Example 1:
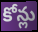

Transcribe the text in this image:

కోన్లు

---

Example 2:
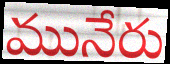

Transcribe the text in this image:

మునేరు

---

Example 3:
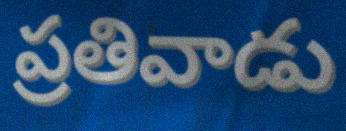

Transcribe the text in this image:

ప్రతివాడు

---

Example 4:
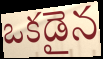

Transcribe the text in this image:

ఒకడైన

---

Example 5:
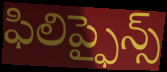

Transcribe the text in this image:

ఫిలిప్ఫైన్స్